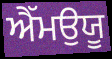
ਐੱਮਉਯੂ